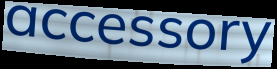
accessory